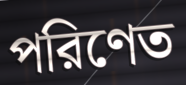
পরিণেত